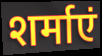
शर्माएं